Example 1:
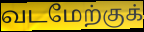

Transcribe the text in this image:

வடமேற்குக்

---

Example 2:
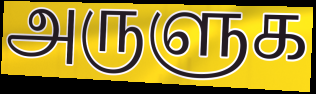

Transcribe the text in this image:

அருளுக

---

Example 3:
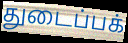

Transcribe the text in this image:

துடைப்பக்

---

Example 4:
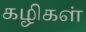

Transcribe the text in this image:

கழிகள்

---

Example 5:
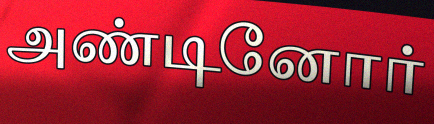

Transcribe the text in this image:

அண்டினோர்